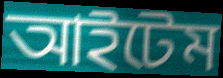
আইটেম